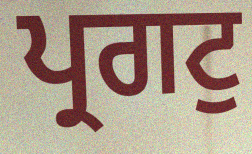
ਪ੍ਰਗਟੁ